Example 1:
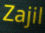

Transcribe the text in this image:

Zajil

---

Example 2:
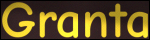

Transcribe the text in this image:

Granta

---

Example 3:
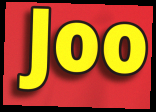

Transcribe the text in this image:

Joo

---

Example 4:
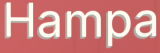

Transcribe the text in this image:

Hampa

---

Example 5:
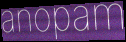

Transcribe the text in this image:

anopam